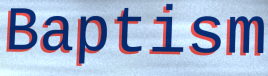
Baptism